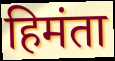
हिमंता